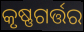
କୃଷ୍ଣଗର୍ତ୍ତର